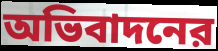
অভিবাদনের